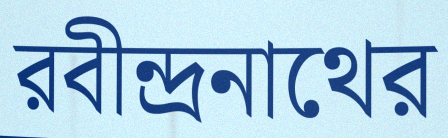
রবীন্দ্রনাথের